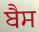
ਬੈਸ